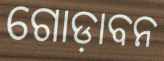
ଗୋଡ଼ାବନ